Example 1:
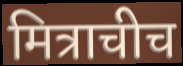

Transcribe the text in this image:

मित्राचीच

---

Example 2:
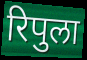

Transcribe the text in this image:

रिपुला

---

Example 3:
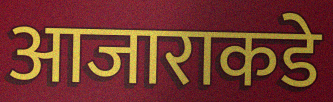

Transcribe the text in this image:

आजाराकडे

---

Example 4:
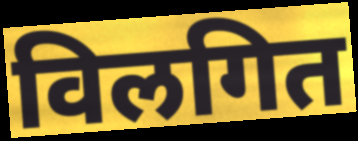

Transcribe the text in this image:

विलगित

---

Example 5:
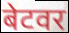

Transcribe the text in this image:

बेटवर